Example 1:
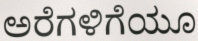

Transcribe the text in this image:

ಅರೆಗಳಿಗೆಯೂ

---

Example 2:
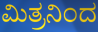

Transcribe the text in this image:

ಮಿತ್ರನಿಂದ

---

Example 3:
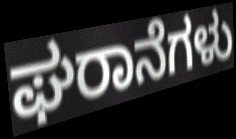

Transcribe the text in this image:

ಘರಾನೆಗಳು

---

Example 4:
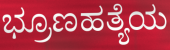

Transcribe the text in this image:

ಭ್ರೂಣಹತ್ಯೆಯ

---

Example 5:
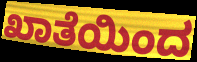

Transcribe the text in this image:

ಖಾತೆಯಿಂದ